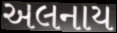
અલનાય